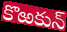
కొఱకున్